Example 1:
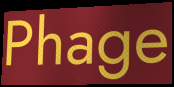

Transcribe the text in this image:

Phage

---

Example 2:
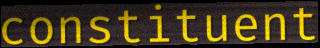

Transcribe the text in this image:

constituent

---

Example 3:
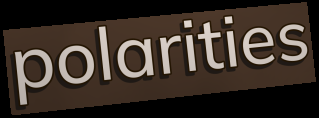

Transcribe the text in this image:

polarities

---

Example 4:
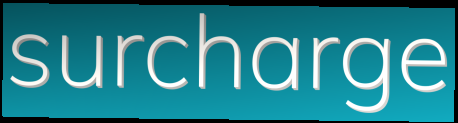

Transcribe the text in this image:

surcharge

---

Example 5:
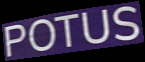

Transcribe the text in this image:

POTUS